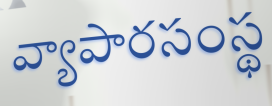
వ్యాపారసంస్థ